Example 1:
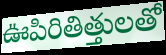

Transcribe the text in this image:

ఊపిరితిత్తులతో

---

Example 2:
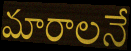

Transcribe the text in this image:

మారాలనే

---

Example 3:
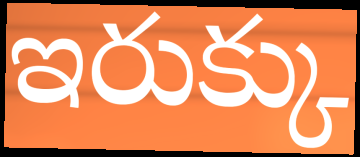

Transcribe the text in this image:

ఇరుక్కు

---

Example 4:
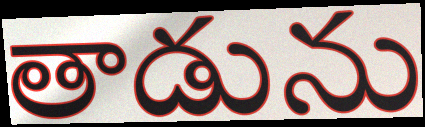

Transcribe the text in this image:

తాడును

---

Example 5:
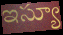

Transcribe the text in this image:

ఇస్యూ